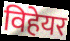
विहेयर